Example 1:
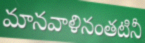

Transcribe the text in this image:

మానవాళినంతటినీ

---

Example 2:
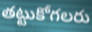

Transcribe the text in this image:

తట్టుకోగలరు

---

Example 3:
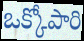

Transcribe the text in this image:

ఒక్కోపారి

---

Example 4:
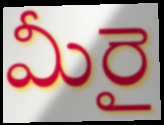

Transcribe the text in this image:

మీరై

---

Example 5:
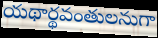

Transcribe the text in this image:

యథార్థవంతులనుగా